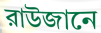
রাউজানে